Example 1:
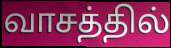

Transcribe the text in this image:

வாசத்தில்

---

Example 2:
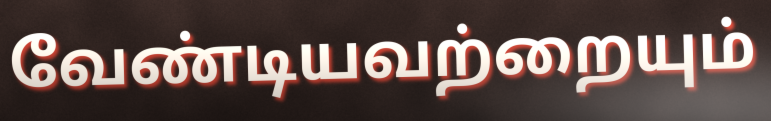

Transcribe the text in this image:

வேண்டியவற்றையும்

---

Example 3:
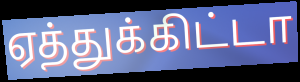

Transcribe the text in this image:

ஏத்துக்கிட்டா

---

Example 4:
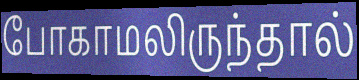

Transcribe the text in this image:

போகாமலிருந்தால்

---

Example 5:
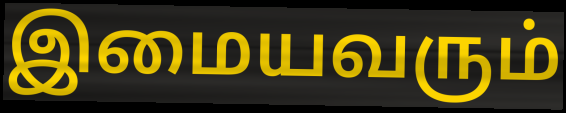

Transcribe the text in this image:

இமையவரும்